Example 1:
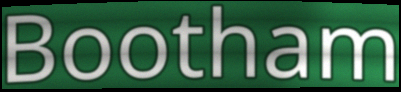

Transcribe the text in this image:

Bootham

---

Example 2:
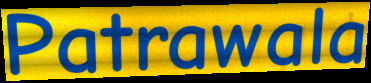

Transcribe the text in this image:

Patrawala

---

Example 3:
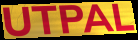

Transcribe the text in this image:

UTPAL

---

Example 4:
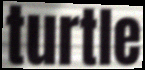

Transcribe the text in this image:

turtle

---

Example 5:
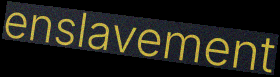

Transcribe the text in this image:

enslavement